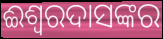
ଈଶ୍ଵରଦାସଙ୍କର